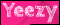
Yeezy